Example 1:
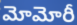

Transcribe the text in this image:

మోమోరీ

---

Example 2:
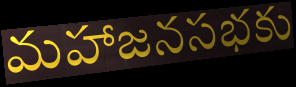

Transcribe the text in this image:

మహాజనసభకు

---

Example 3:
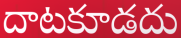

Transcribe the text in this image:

దాటకూడదు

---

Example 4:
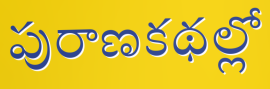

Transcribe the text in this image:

పురాణకథల్లో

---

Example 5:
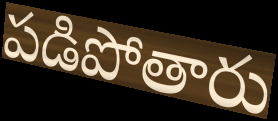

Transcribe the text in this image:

పడిపోతారు